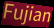
Fujian